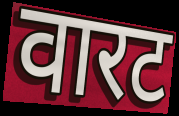
वारट